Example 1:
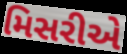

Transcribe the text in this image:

મિસરીએ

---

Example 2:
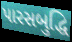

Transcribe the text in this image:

પારસબુદ્ધિ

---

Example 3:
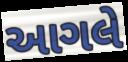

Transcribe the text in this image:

આગલે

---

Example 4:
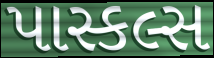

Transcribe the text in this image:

પાસ્કલ્સ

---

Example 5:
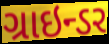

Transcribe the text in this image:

ગ્રાઇન્ડર